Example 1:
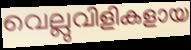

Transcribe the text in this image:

വെല്ലുവിളികളായ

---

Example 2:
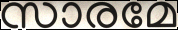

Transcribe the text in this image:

സാരമേ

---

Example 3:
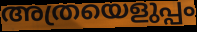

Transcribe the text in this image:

അത്രയെളുപ്പം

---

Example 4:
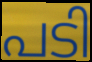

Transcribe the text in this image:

പടി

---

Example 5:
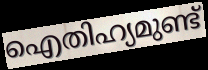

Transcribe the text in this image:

ഐതിഹ്യമുണ്ട്